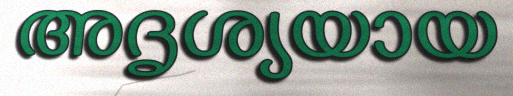
അദൃശ്യയായ